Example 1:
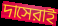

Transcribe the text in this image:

দাসেরাই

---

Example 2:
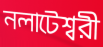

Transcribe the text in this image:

নলাটেশ্বরী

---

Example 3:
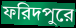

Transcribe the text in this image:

ফরিদপুরে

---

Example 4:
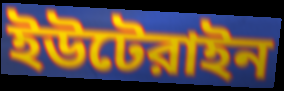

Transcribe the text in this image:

ইউটেরাইন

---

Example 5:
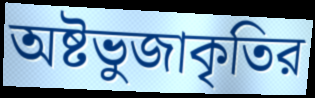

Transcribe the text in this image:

অষ্টভুজাকৃতির